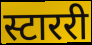
स्टाररी